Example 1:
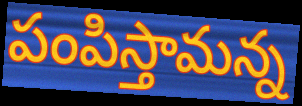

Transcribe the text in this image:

పంపిస్తామన్న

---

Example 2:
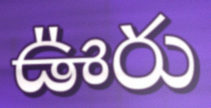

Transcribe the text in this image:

ఊరు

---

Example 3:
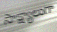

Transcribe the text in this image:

సాక్ష్యాలుగా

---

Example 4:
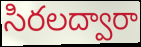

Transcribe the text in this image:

సిరలద్వారా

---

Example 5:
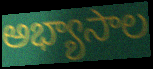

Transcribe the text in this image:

అభ్యాసాల